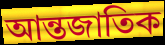
আন্তজাতিক